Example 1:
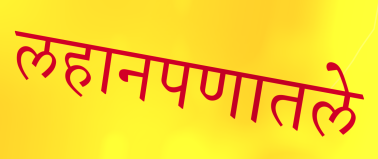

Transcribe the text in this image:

लहानपणातले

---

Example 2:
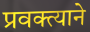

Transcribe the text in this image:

प्रवक्‍त्याने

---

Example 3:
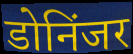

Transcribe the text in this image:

डोनिंजर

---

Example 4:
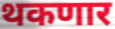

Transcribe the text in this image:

थकणार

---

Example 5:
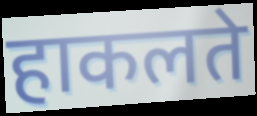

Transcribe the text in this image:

हाकलते